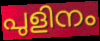
പുളിനം